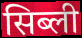
सिब्ली